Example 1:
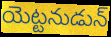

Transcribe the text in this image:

యెట్టనుడున్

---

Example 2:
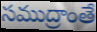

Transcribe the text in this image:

సముద్రాంతే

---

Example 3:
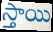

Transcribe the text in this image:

స్తాయి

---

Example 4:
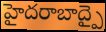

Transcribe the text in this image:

హైదరాబాద్పై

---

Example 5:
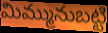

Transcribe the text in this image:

మిమ్మునుబట్టి